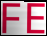
FE